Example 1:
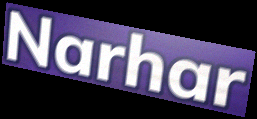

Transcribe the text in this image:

Narhar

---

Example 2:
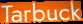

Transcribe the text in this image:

Tarbuck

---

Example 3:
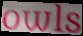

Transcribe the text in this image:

owls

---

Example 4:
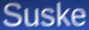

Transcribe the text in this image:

Suske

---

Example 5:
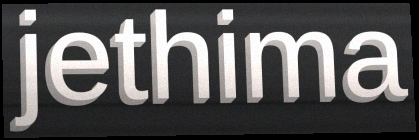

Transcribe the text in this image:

jethima